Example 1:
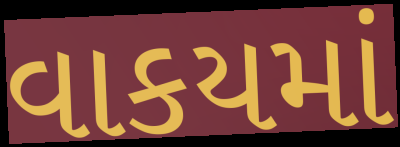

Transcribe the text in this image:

વાકયમાં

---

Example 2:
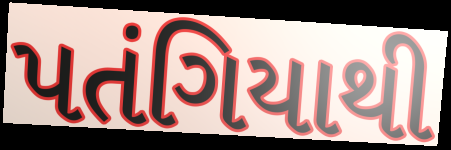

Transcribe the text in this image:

પતંગિયાથી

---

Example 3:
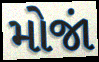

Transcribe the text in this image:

મોજાં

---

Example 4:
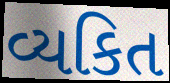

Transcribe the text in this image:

વ્યકિત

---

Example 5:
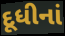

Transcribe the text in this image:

દૂધીનાં